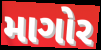
માગોર